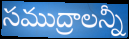
సముద్రాలన్నీ